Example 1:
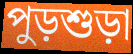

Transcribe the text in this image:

পুড়শুড়া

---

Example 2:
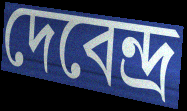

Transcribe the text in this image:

দেবেন্দ্র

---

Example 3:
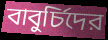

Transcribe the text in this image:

বাবুর্চিদের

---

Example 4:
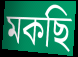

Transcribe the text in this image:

মকছি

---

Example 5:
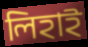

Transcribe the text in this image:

লিহাই